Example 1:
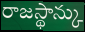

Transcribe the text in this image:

రాజస్థాన్కు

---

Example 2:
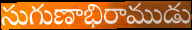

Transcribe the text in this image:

సుగుణాభిరాముడు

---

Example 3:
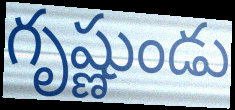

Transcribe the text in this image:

గృష్ణుండు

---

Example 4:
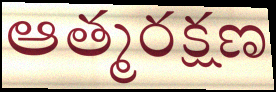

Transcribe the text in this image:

ఆత్మరక్షణ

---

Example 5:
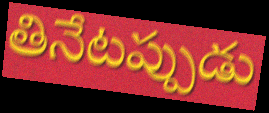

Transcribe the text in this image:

తినేటప్పుడు